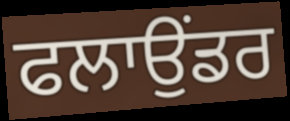
ਫਲਾਉਂਡਰ